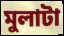
মুলাটা